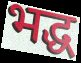
भद्ध